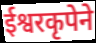
ईश्वरकृपेने